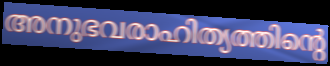
അനുഭവരാഹിത്യത്തിന്റെ